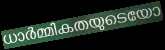
ധാർമ്മികതയുടെയോ